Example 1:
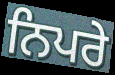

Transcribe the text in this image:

ਨਿਪਰੇ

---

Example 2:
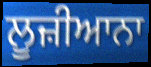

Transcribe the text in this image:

ਲੂਜ਼ੀਆਨਾ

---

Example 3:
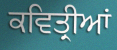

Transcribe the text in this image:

ਕਵਿਤ੍ਰੀਆਂ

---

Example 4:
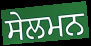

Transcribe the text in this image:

ਸੇਲਮਨ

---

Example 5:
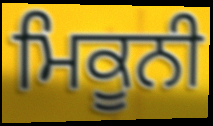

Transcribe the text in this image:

ਮਿਕੂਨੀ